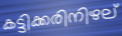
കട്ടിക്കരിനിഴല്